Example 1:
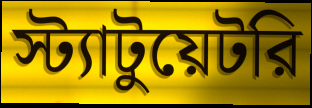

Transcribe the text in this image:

স্ট্যাটুয়েটরি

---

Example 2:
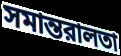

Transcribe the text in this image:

সমান্তরালতা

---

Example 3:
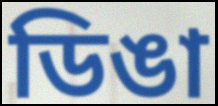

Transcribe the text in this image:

ডিঙা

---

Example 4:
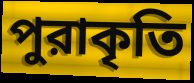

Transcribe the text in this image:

পুরাকৃতি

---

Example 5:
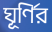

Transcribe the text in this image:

ঘূর্ণির